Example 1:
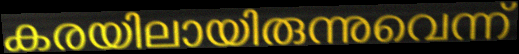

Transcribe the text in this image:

കരയിലായിരുന്നുവെന്ന്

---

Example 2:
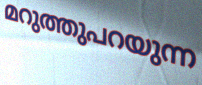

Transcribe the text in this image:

മറുത്തുപറയുന്ന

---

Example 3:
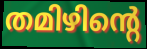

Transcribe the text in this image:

തമിഴിന്റെ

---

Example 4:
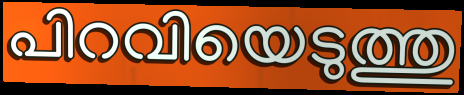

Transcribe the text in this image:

പിറവിയെടുത്തു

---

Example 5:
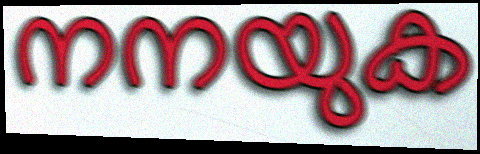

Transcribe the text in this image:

നനയുക